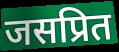
जसप्रित